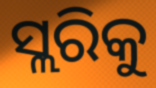
ସ୍ଲରିକୁ